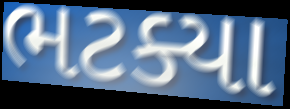
ભટક્યા